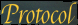
Protocol